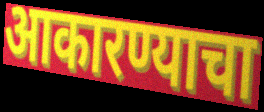
आकारण्याचा